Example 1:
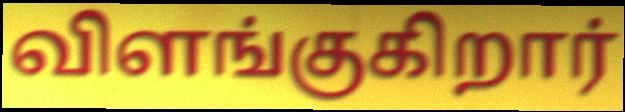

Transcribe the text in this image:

விளங்குகிறார்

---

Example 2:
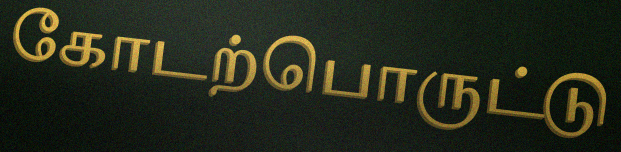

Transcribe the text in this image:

கோடற்பொருட்டு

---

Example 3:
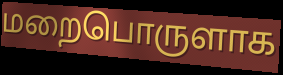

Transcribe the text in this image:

மறைபொருளாக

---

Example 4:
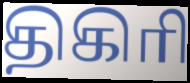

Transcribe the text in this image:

திகிரி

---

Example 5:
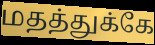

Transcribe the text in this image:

மதத்துக்கே